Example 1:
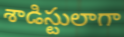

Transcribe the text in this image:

శాడిస్టులాగా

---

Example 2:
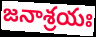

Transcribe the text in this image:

జనాశ్రయః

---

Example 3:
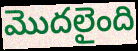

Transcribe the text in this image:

మొదలైంది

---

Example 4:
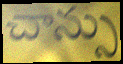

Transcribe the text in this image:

చాన్సు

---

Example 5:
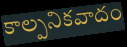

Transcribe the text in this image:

కాల్పనికవాదం